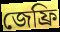
জেফ্রি